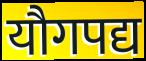
यौगपद्य